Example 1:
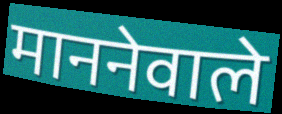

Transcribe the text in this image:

माननेवाले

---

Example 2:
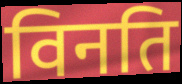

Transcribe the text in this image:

विनति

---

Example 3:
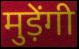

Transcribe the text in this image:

मुड़ेंगी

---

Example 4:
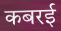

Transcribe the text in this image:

कबरई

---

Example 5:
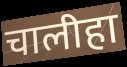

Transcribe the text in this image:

चालीहा